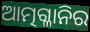
ଆତ୍ମଗ୍ଳାନିର